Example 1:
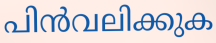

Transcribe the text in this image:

പിൻവലിക്കുക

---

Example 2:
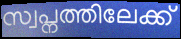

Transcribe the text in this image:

സ്വപ്നത്തിലേക്ക്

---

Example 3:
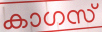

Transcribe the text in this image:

കാഗസ്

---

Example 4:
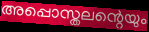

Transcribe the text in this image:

അപ്പൊസ്തലന്റെയും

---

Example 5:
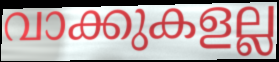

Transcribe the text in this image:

വാക്കുകളല്ല